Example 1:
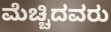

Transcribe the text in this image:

ಮೆಚ್ಚಿದವರು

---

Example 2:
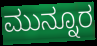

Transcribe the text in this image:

ಮುನ್ನೂರ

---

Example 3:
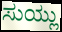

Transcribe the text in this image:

ಸುಯ್ಲು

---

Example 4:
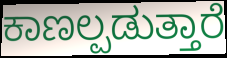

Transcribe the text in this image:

ಕಾಣಲ್ಪಡುತ್ತಾರೆ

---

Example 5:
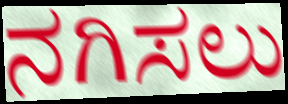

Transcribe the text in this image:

ನಗಿಸಲು